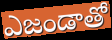
ఎజండాతో